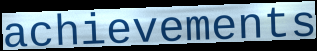
achievements